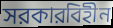
সরকারবিহীন